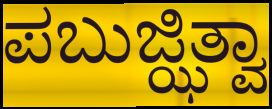
ಪಬುಜ್ಝಿತ್ವಾ